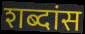
शब्दांस